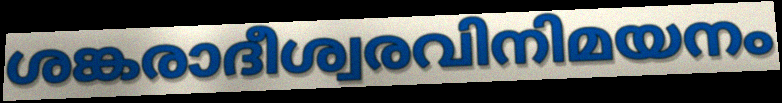
ശങ്കരാദീശ്വരവിനിമയനം